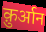
क़ुर्आन